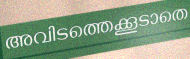
അവിടത്തെക്കൂടാതെ